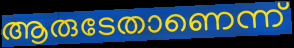
ആരുടേതാണെന്ന്